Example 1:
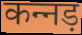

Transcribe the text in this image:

कन्‍नड़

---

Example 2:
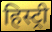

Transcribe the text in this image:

हिस्ट्री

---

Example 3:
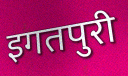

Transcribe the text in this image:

इगतपुरी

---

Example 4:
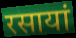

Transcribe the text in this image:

रसायां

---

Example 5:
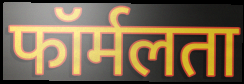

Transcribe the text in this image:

फॉर्मलता